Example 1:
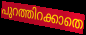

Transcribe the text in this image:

പുറത്തിറക്കാതെ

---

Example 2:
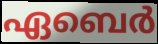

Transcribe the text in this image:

ഏബെർ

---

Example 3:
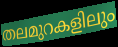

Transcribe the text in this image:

തലമുറകളിലും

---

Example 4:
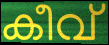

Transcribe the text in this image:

കീവ്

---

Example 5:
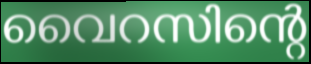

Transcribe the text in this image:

വൈറസിന്റെ